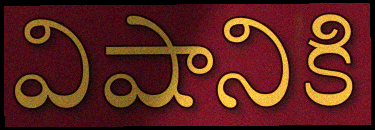
విషానికి